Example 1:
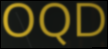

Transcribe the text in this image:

OQD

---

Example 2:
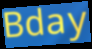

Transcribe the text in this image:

Bday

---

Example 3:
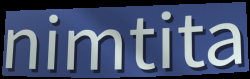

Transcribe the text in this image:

nimtita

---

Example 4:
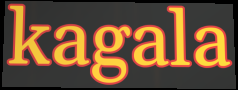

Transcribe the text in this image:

kagala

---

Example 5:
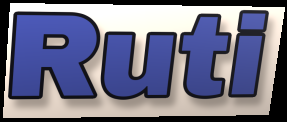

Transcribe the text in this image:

Ruti